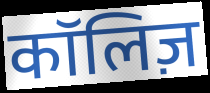
कॉलिज़